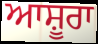
ਆਸ਼ੂਰਾ